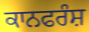
ਕਾਨਫਰੰਸ਼